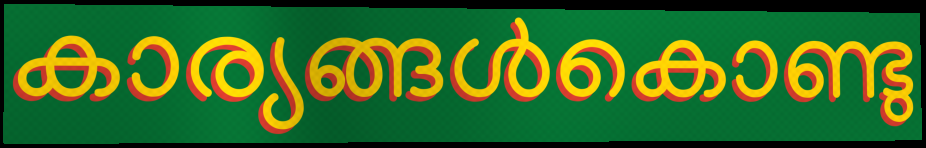
കാര്യങ്ങൾകൊണ്ടു